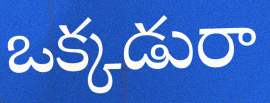
ఒక్కడురా